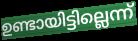
ഉണ്ടായിട്ടില്ലെന്ന്